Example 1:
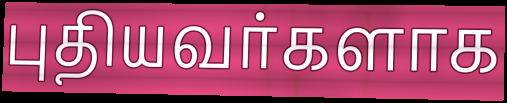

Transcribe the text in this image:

புதியவர்களாக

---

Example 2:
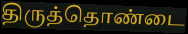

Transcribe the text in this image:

திருத்தொண்டை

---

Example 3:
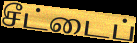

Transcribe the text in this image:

சீட்டைப்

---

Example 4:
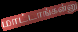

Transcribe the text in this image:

மாட்டாங்கன்னு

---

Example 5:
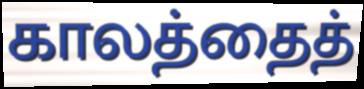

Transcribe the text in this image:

காலத்தைத்